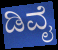
ಡಿವೈ